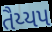
તૈય્યપ